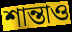
শান্তাও